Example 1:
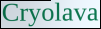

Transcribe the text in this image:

Cryolava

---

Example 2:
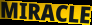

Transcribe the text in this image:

MIRACLE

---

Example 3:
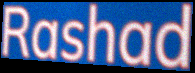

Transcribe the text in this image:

Rashad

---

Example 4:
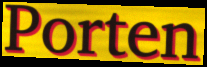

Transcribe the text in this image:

Porten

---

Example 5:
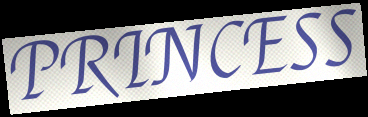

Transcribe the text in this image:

PRINCESS